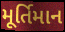
મૂર્તિમાન